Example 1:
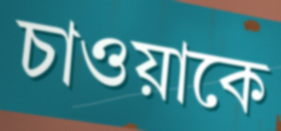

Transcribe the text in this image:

চাওয়াকে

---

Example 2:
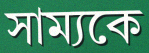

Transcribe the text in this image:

সাম্যকে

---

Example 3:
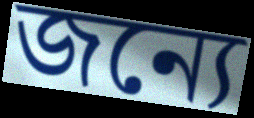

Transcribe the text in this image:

জন্যে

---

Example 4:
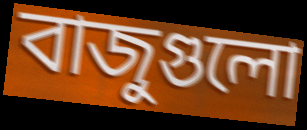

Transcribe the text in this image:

বাজুগুলো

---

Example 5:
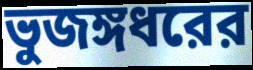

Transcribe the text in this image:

ভুজঙ্গধরের